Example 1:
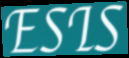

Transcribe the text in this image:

ESIS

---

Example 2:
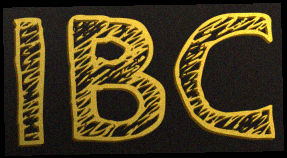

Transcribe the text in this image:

IBC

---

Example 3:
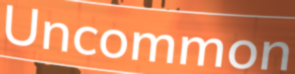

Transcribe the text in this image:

Uncommon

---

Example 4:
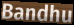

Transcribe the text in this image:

Bandhu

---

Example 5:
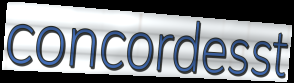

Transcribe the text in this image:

concordesst